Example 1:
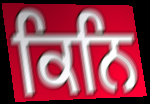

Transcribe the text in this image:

ਕਿਨਿ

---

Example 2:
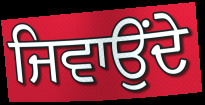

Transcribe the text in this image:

ਜਿਵਾਉਂਦੇ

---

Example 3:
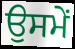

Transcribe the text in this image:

ਉਸਮੇਂ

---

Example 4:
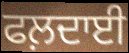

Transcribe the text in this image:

ਫਲ਼ਦਾਈ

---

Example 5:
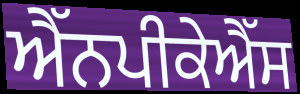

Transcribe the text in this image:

ਐੱਨਪੀਕੇਐੱਸ